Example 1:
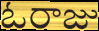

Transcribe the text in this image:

ఓరాజు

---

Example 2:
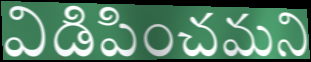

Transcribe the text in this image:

విడిపించమని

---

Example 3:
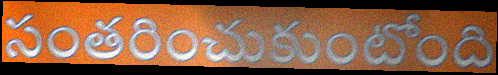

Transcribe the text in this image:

సంతరించుకుంటోంది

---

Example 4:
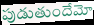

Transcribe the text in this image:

పుడుతుందేమో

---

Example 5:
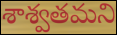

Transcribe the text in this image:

శాశ్వతమని